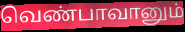
வெண்பாவானும்